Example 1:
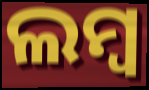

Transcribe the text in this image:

ଲମ୍ବ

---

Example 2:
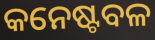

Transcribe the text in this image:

କନେଷ୍ଟବଳ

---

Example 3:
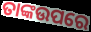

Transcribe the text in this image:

ତାଙ୍କଉପରେ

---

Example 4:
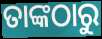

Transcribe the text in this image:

ତାଙ୍କଠାରୁ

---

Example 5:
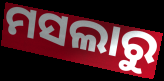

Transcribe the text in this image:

ମସଲାରୁ